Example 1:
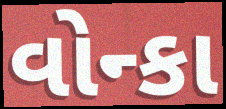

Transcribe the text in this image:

વોન્કા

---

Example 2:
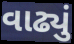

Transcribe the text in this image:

વાઢ્યું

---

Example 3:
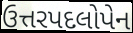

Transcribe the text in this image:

ઉત્તરપદલોપેન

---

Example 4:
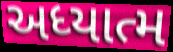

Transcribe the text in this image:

અધ્યાત્મ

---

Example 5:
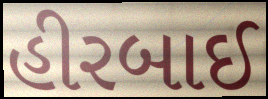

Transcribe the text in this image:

હીરબાઈ